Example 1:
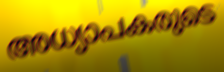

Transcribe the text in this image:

അധ്യാപകരുടെ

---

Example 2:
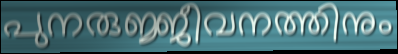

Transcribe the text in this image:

പുനരുജ്ജീവനത്തിനും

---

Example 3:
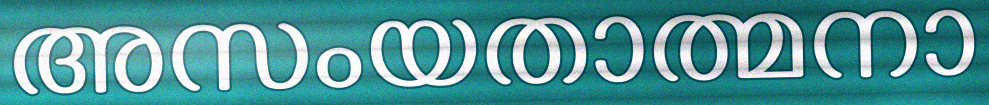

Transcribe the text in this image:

അസംയതാത്മനാ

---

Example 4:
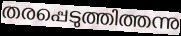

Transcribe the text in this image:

തരപ്പെടുത്തിത്തന്നു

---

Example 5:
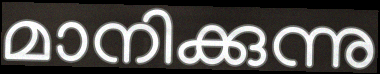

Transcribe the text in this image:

മാനിക്കുന്നു